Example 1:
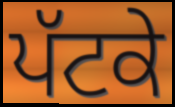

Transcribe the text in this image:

ਪੱਟਕੇ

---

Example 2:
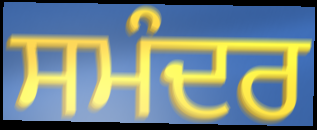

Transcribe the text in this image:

ਸਮੰਦਰ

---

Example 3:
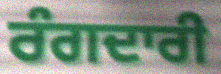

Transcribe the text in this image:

ਰੰਗਦਾਰੀ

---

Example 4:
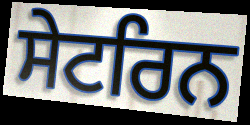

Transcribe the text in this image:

ਸੇਟਰਿਨ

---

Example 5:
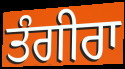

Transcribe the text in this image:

ਤੰਗੀਰਾ